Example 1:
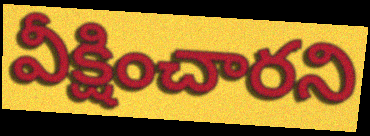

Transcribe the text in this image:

వీక్షించారని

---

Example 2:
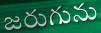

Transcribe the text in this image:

జరుగును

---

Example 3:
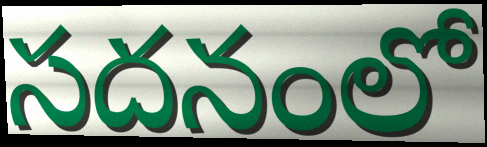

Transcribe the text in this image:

సదనంలో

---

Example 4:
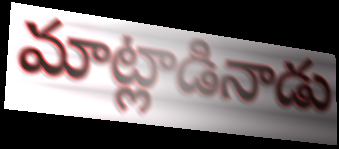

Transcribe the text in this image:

మాట్లాడినాడు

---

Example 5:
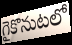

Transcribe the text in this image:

గైకొనుటలో